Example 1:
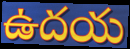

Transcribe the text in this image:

ఉదయ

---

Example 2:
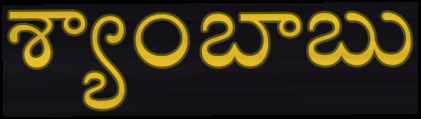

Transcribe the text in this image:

శ్యాంబాబు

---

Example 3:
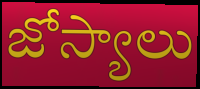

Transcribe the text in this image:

జోస్యాలు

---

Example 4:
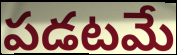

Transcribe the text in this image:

పడటమే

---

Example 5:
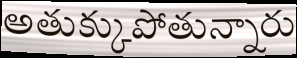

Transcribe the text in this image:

అతుక్కుపోతున్నారు